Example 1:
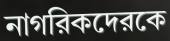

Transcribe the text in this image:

নাগরিকদেরকে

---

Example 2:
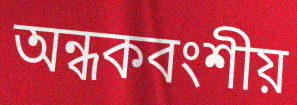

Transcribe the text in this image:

অন্ধকবংশীয়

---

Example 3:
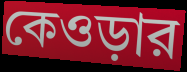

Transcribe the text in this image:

কেওড়ার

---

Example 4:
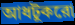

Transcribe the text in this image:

আধটুকরো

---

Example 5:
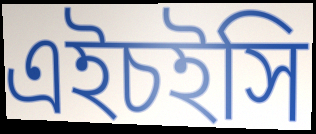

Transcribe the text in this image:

এইচইসি